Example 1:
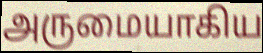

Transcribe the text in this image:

அருமையாகிய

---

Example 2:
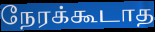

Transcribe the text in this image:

நேரக்கூடாத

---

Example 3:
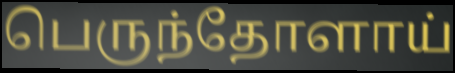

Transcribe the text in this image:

பெருந்தோளாய்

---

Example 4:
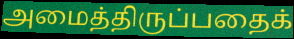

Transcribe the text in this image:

அமைத்திருப்பதைக்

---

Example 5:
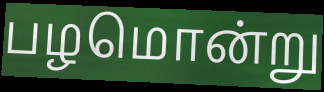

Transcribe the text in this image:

பழமொன்று